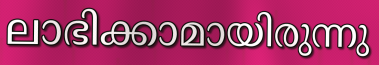
ലാഭിക്കാമായിരുന്നു